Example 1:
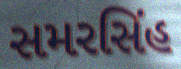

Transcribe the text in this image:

સમરસિંહ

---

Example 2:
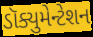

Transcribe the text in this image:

ડૉક્યુમેન્ટેશન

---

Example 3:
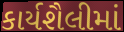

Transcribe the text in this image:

કાર્યશૈલીમાં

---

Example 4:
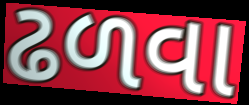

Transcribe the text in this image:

ઢળવા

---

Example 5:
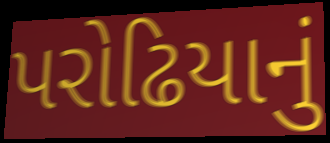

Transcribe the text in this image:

પરોઢિયાનું